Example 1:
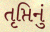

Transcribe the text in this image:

તૃપ્તિનું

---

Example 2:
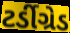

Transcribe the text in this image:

ટર્ડીગ્રેડ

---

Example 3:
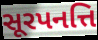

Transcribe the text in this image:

સૂરપનત્તિ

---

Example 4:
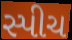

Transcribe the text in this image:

સ્પીચ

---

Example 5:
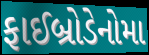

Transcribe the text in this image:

ફાઈબ્રોડેનોમા